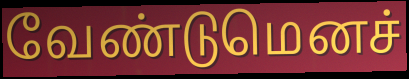
வேண்டுமெனச்